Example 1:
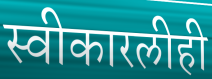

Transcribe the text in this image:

स्वीकारलीही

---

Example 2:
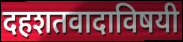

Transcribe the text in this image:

दहशतवादाविषयी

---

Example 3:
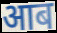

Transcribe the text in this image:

आब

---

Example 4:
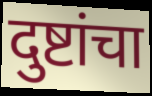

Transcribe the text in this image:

दुष्टांचा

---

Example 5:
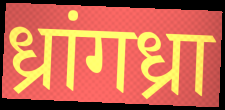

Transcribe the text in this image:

ध्रांगध्रा